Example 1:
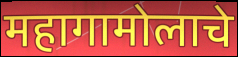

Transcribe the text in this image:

महागामोलाचे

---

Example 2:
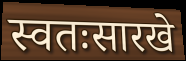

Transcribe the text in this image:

स्वतःसारखे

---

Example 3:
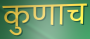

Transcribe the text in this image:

कुणाच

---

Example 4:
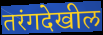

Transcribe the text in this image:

तरंगदेखील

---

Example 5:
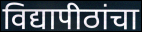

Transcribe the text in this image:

विद्यापीठांचा